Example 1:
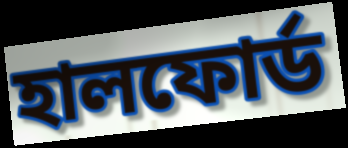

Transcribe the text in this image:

হালফোর্ড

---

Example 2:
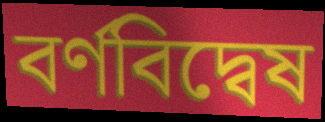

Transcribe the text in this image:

বর্ণবিদ্বেষ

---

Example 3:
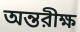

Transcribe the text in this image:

অন্তরীক্ষ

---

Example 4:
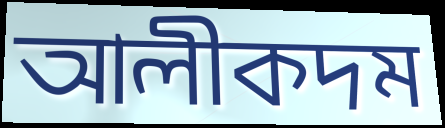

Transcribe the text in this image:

আলীকদম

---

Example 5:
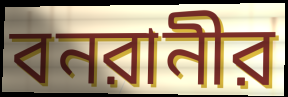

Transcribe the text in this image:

বনরানীর